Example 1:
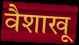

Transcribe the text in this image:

वैशाखू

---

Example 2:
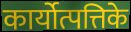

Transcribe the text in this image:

कार्योत्पत्तिके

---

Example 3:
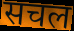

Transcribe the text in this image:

सचल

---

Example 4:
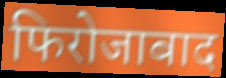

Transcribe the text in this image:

फिरोजाबाद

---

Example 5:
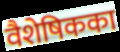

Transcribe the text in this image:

वैशेषिकका